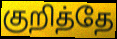
குறித்தே